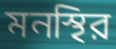
মনস্থির